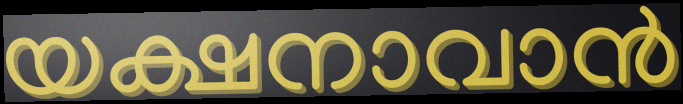
യക്ഷനാവാൻ